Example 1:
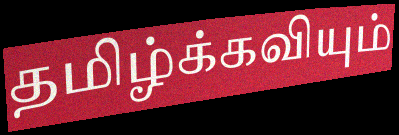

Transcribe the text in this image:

தமிழ்க்கவியும்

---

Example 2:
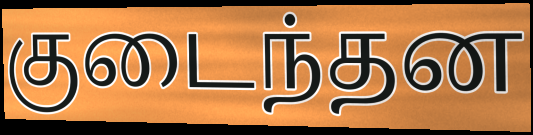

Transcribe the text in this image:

குடைந்தன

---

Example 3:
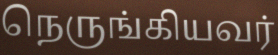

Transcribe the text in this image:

நெருங்கியவர்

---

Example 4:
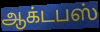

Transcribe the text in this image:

ஆக்டபஸ்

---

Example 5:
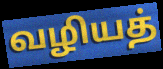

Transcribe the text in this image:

வழியத்